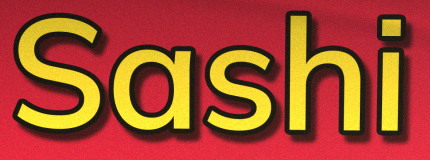
Sashi